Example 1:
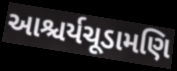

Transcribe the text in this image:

આશ્ચર્યચૂડામણિ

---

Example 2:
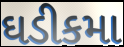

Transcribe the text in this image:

ઘડીકમા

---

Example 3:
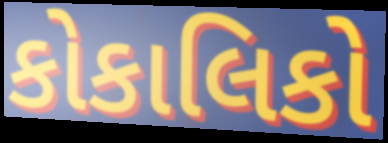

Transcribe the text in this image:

કોકાલિકો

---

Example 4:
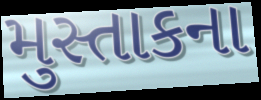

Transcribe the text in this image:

મુસ્તાકના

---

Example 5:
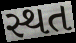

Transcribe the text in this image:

સ્થત